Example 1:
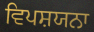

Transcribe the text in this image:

ਵਿਪਸ਼ਯਨਾ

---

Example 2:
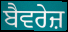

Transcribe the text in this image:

ਬੈਵਰੇਜ਼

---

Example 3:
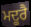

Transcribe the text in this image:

ਮਦੂਰੈ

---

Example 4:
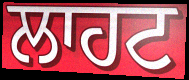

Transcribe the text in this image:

ਲਾਹਟ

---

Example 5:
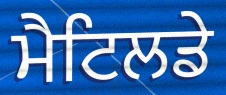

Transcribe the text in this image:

ਮੈਟਿਲਡੇ